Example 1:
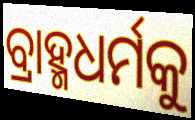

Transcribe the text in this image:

ବ୍ରାହ୍ମଧର୍ମକୁ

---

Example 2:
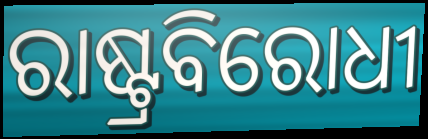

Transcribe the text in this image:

ରାଷ୍ଟ୍ରବିରୋଧୀ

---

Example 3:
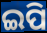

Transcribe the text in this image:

ଇପି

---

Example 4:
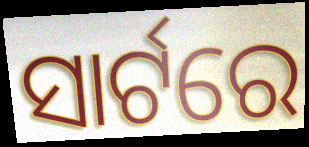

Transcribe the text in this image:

ସାର୍ଟରେ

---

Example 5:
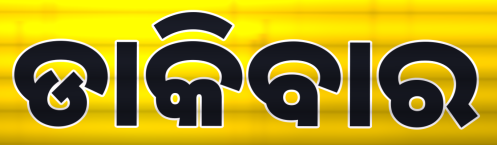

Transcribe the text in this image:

ଡାକିବାର